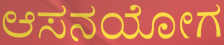
ಆಸನಯೋಗ